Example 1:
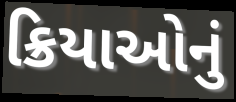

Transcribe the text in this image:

ક્રિયાઓનું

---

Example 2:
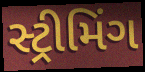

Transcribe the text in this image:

સ્ટ્રીમિંગ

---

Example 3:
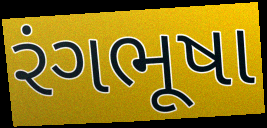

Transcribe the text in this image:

રંગભૂષા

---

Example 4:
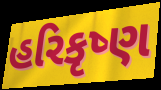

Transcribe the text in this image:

હરિકૃષ્ણ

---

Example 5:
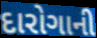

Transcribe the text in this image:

દારોગાની